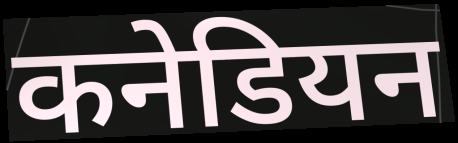
कनेडियन